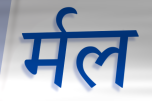
र्मल